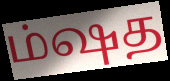
ம்ஷத